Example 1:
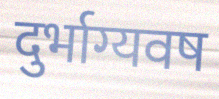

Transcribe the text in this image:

दुर्भाग्यवष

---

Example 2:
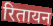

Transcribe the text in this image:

रितायन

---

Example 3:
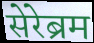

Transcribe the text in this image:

सेरेब्रम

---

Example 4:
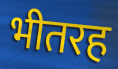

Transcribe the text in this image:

भीतरह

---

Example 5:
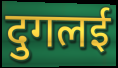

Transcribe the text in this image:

दुगलई